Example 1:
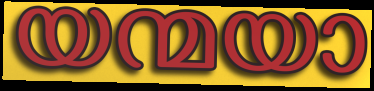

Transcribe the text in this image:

യന്മയാ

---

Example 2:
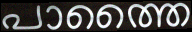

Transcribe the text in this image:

പാത്തൈ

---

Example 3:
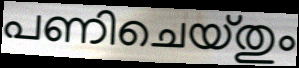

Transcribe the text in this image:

പണിചെയ്തും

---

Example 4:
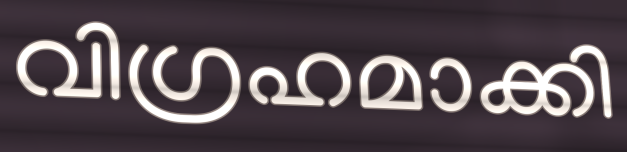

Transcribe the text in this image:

വിഗ്രഹമാക്കി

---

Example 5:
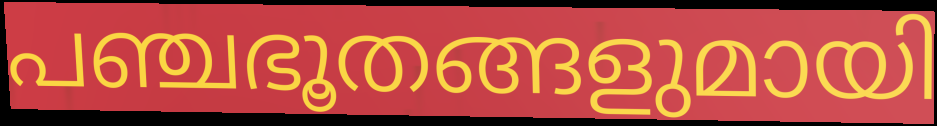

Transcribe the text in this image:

പഞ്ചഭൂതങ്ങളുമായി